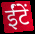
ईंटें